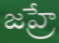
జహ్రే